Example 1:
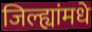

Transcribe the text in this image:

जिल्ह्यांमधे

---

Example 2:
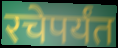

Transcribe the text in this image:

रचेपर्यंत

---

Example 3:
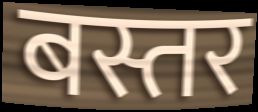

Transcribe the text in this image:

बस्तर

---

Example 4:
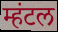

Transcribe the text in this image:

म्हंटल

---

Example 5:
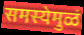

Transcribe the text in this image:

समस्येमुळं